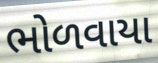
ભોળવાયા